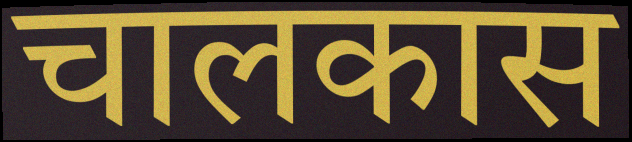
चालकास